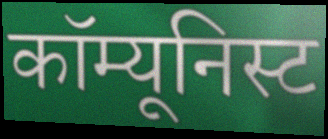
कॉम्यूनिस्ट